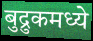
बुद्रुकमध्ये